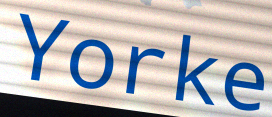
Yorke